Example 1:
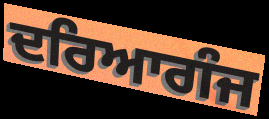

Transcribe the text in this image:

ਦਰਿਆਗੰਜ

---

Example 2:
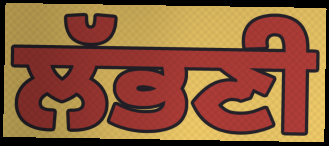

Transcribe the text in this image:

ਲੱਭਣੀ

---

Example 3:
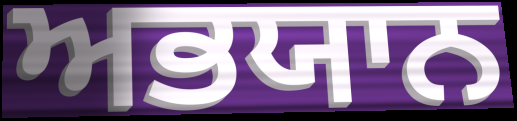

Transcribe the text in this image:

ਅਭਯਾਨ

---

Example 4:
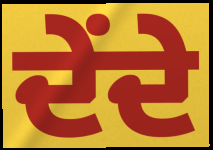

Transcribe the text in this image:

ਦੇਂਦੇ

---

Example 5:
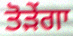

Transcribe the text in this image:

ਤੋੜੇਂਗਾ